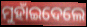
ମୁହାଁଇଦେଲେ